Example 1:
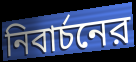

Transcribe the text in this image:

নিবার্চনের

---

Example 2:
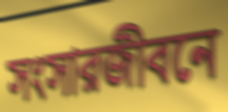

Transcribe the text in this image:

সংসারজীবনে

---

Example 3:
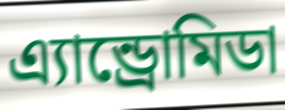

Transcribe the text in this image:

এ্যান্ড্রোমিডা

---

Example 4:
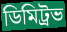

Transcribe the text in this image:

ডিমিট্রভ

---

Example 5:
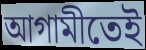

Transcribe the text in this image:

আগামীতেই